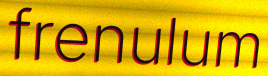
frenulum